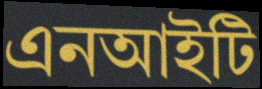
এনআইটি